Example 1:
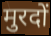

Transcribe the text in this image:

मुरदों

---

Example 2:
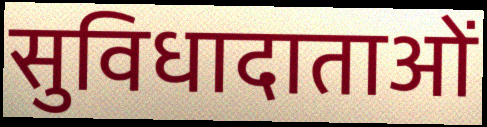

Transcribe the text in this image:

सुविधादाताओं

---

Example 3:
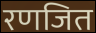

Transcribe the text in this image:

रणजित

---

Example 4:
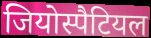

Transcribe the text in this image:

जियोस्पैटियल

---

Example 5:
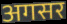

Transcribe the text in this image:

अगसर